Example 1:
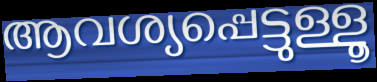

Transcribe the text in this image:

ആവശ്യപ്പെട്ടുള്ളൂ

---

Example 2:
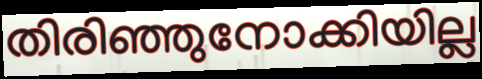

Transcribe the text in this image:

തിരിഞ്ഞുനോക്കിയില്ല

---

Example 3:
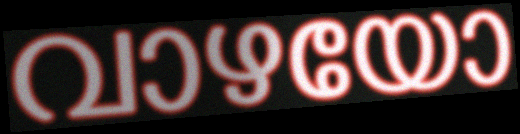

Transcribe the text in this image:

വാഴയോ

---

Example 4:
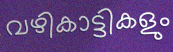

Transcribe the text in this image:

വഴികാട്ടികളും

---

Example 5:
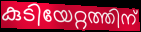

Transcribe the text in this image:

കുടിയേറ്റത്തിന്